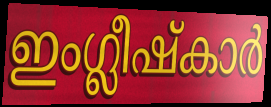
ഇംഗ്ലീഷ്കാർ